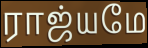
ராஜ்யமே